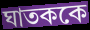
ঘাতককে